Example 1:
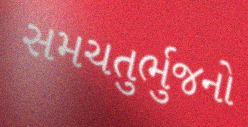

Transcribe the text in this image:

સમચતુર્ભુજનો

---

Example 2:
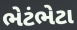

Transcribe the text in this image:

ભેટંભેટા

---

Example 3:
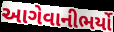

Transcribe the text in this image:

આગેવાનીભર્યો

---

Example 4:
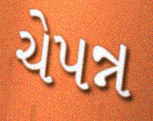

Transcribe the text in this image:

ચેપન્ન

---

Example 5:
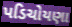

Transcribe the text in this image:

પડિચોયણા